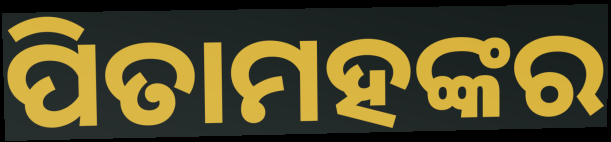
ପିତାମହଙ୍କର